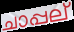
ചാപ്പല്